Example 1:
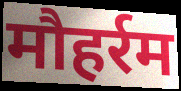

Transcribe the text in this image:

मौहर्रम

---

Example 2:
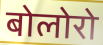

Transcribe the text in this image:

बोलोरो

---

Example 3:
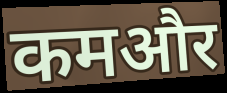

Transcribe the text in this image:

कमऔर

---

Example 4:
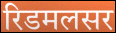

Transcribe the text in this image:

रिडमलसर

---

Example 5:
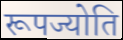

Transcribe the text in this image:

रूपज्योति